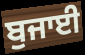
ਬੁਜਾਈ